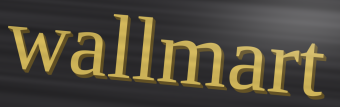
wallmart